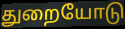
துறையோடு